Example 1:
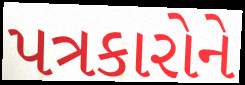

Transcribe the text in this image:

પત્રકારોને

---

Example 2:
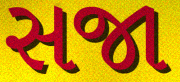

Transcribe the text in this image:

સજા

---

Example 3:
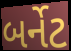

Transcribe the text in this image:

બર્નેટ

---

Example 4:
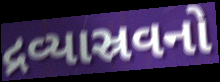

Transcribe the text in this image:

દ્રવ્યાસ્રવનો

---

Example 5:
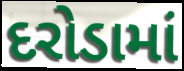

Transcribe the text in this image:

દરોડામાં